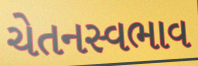
ચેતનસ્વભાવ